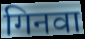
गिनवा